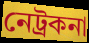
নেট্ৰকনা